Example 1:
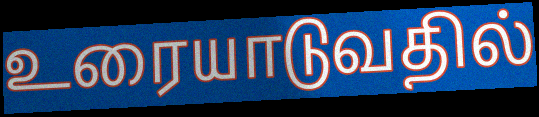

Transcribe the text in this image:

உரையாடுவதில்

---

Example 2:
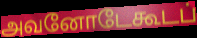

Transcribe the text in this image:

அவனோடேகூடப்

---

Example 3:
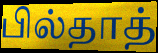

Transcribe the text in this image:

பில்தாத்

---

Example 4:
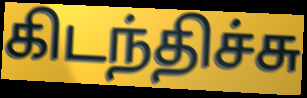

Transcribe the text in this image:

கிடந்திச்சு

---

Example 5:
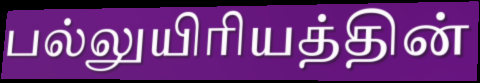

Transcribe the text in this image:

பல்லுயிரியத்தின்